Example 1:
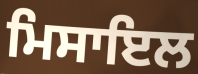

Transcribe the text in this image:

ਮਿਸਾਇਲ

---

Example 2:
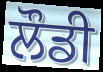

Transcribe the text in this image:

ਲੌਡੀ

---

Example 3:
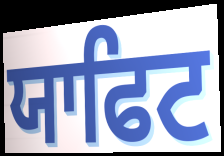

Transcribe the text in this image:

ਯਾਫਿਟ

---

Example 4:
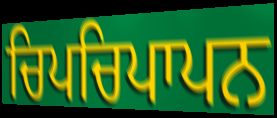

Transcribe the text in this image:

ਚਿਪਚਿਪਾਪਨ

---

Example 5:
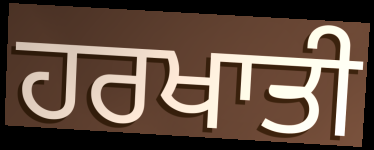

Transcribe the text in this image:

ਹਰਖਾਤੀ